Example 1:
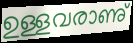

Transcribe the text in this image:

ഉള്ളവരാണു്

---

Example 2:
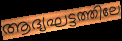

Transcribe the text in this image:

ആദ്യഘട്ടത്തിലേ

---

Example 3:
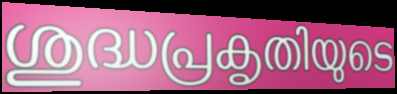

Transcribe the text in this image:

ശുദ്ധപ്രകൃതിയുടെ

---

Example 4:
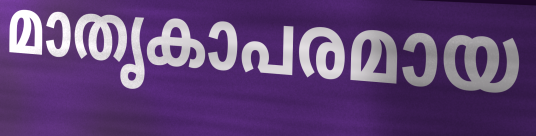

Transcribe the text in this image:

മാതൃകാപരമായ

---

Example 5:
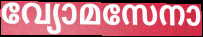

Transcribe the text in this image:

വ്യോമസേനാ